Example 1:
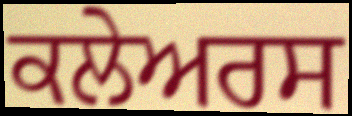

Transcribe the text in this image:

ਕਲੇਅਰਸ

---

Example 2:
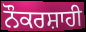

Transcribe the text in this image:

ਨੌਕਰਸ਼ਾਹੀ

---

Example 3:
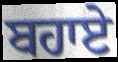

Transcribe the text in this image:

ਬਹਾਏ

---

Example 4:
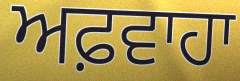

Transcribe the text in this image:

ਅਫ਼ਵਾਹਾ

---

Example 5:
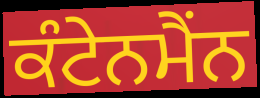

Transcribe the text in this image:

ਕੰਟੇਨਮੈਂਨ